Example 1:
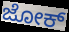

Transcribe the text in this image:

ಜೋಕ್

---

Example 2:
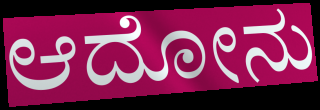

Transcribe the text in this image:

ಆದೋನು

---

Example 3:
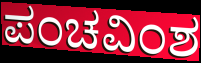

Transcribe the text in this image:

ಪಂಚವಿಂಶ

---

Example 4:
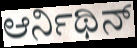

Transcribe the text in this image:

ಆರ್ನಿಥಿನ್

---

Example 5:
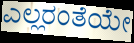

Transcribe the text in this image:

ಎಲ್ಲರಂತೆಯೇ